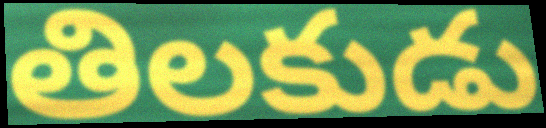
తిలకుడు